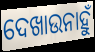
ଦେଖାଉନାହୁଁ